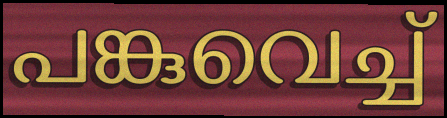
പങ്കുവെച്ച്